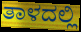
ತಾಳದಲ್ಲಿ